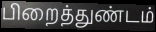
பிறைத்துண்டம்